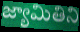
జ్యామితిని